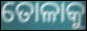
ତୋଳାକୁ